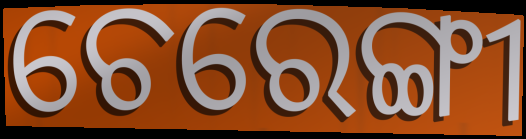
ଚେରେଙ୍ଗୀ